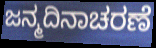
ಜನ್ಮದಿನಾಚರಣೆ